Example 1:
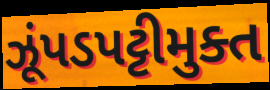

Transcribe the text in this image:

ઝૂંપડપટ્ટીમુક્ત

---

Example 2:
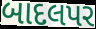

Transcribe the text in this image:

બાદલપર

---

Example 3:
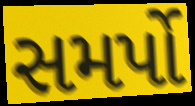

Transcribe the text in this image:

સમર્પો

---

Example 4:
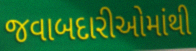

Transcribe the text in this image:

જવાબદારીઓમાંથી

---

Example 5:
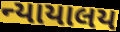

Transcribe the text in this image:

ન્યાયાલય